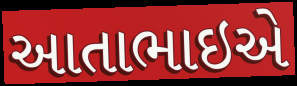
આતાભાઇએ